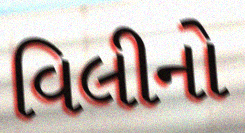
વિલીનો